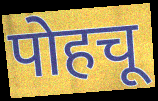
पोहचू